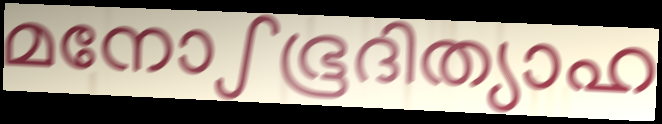
മനോഽഭൂദിത്യാഹ